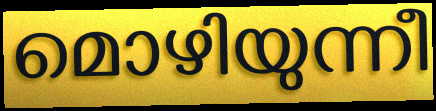
മൊഴിയുന്നീ